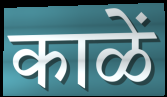
काळें